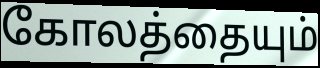
கோலத்தையும்